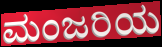
ಮಂಜರಿಯ